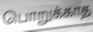
பொறுக்காத